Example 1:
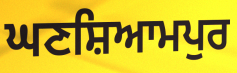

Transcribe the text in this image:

ਘਣਸ਼ਿਆਮਪੁਰ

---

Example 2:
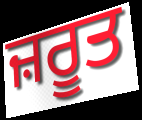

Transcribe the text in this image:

ਜ਼ਰੂਤ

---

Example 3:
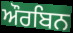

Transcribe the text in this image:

ਔਰਬਿਨ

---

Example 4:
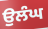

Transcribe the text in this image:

ਉਲੰਘ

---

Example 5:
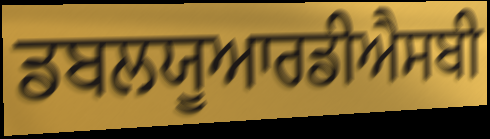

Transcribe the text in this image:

ਡਬਲਯੂਆਰਡੀਐਸਬੀ